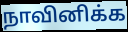
நாவினிக்க